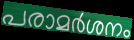
പരാമർശനം